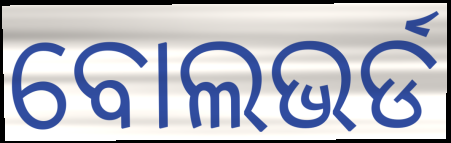
ବୋଲଭର୍ଡ